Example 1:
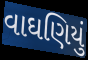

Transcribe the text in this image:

વાઘણિયું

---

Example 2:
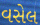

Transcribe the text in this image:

વસેલ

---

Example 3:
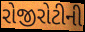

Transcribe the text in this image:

રોજીરોટીની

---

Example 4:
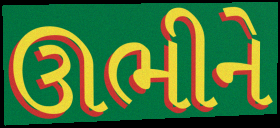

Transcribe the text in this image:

ઊભીને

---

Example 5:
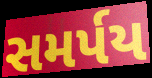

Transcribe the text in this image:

સમર્પય